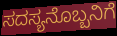
ಸದಸ್ಯನೊಬ್ಬನಿಗೆ